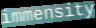
immensity